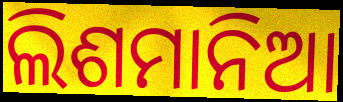
ଲିଶମାନିଆ